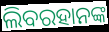
ଲିବରହାନଙ୍କ